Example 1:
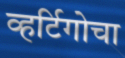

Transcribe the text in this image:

व्हर्टिगोचा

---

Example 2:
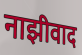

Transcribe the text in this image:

नाझीवाद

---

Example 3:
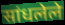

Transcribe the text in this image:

सांधलेले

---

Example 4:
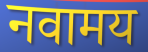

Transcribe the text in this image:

नवामय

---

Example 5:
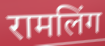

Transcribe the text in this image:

रामलिंग